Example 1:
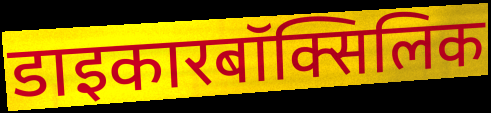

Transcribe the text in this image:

डाइकारबॉक्सिलिक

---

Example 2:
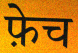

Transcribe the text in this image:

फ़ेच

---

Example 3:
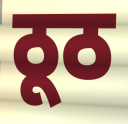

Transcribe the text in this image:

ठूठ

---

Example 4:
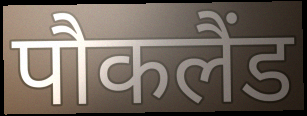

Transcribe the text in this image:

पौकलैंड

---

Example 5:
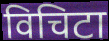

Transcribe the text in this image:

विचिटा